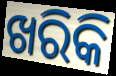
ଖରିକି